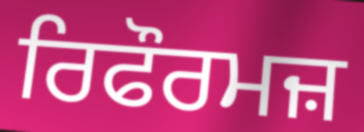
ਰਿਫੌਰਮਜ਼